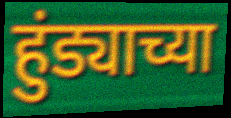
हुंड्याच्या